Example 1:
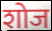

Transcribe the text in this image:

शोज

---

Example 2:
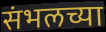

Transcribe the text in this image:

संभलच्या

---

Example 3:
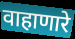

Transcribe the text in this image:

वाहाणारे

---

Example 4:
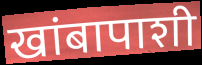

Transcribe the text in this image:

खांबापाशी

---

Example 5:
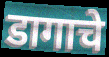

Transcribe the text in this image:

डागाचे